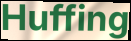
Huffing